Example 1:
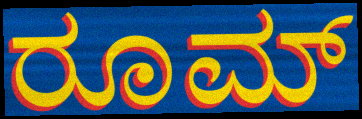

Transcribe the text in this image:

ರೂಮ್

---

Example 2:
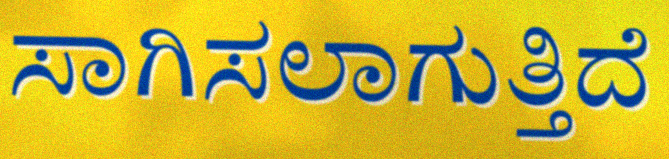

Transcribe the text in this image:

ಸಾಗಿಸಲಾಗುತ್ತಿದೆ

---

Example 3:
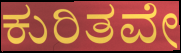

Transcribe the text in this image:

ಕುರಿತವೇ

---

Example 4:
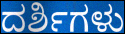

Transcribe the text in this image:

ದರ್ಶಿಗಳು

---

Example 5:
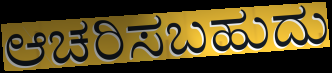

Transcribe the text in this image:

ಆಚರಿಸಬಹುದು